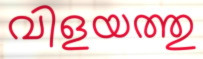
വിളയത്തു